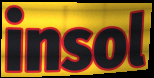
insol